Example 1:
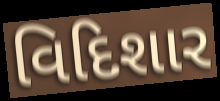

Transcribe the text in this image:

વિદિશાર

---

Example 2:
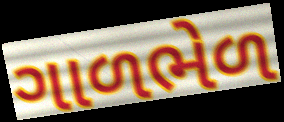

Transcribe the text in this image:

ગાળભેળ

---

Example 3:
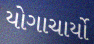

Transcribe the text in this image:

યોગાચાર્યો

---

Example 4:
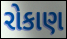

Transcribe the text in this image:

રોકાણ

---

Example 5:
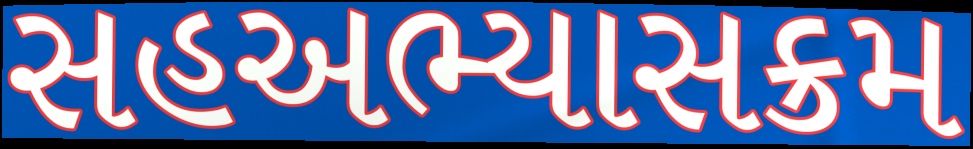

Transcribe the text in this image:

સહઅભ્યાસક્રમ